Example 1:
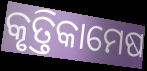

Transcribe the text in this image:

କୃତ୍ତିକାମେଷ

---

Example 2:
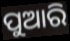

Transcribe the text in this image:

ପୁଆରି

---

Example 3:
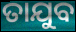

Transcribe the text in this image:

ତାଯୁବ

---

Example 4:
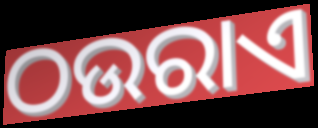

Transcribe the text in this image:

ଠଉରାଏ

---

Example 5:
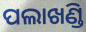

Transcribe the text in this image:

ପଲାଖଣ୍ଡି